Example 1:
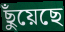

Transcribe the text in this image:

ছুঁয়েছে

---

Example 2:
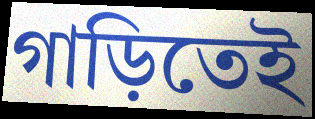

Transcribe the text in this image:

গাড়িতেই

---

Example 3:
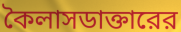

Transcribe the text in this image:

কৈলাসডাক্তারের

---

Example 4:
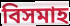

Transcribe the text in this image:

বিসমাহ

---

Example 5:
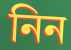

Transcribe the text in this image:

নিন